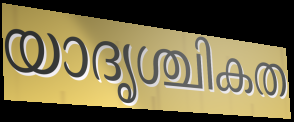
യാദൃശ്ചികത